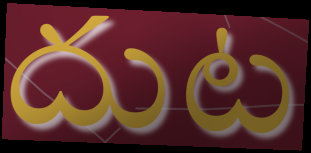
దుట